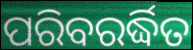
ପରିବରର୍ଦ୍ଧିତ